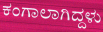
ಕಂಗಾಲಾಗಿದ್ದಳು